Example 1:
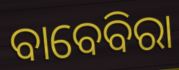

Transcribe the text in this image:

ବାବେବିରା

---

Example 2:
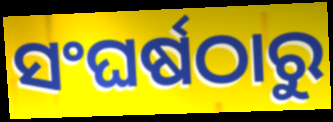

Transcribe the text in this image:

ସଂଘର୍ଷଠାରୁ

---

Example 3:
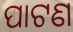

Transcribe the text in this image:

ପାଟଣ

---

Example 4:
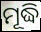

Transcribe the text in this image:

ମୂଦ୍ଧି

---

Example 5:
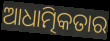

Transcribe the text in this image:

ଆଧାତ୍ମିକତାର